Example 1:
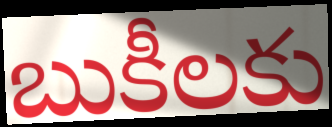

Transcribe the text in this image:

బుకీలకు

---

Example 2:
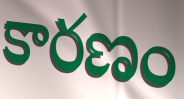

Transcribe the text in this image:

కారణం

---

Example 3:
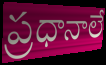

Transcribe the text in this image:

ప్రధానాలే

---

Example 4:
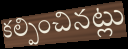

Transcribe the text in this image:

కల్పించినట్లు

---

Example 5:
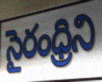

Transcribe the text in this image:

సైరంధ్రిని